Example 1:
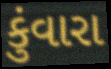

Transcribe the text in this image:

કુંવારા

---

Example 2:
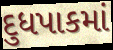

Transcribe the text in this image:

દુધપાકમાં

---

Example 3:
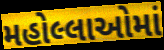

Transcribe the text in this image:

મહોલ્લાઓમાં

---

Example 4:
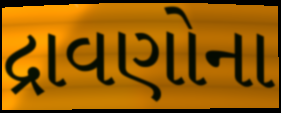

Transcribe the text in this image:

દ્રાવણોના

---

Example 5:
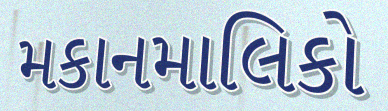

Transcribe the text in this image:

મકાનમાલિકો